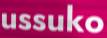
ussuko